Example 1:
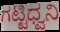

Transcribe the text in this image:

ಗಟ್ಟಿಧ್ವನಿ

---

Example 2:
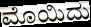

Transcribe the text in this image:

ಮೊಯಿದು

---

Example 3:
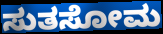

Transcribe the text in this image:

ಸುತಸೋಮ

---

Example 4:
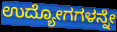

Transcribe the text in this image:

ಉದ್ಯೋಗಗಳನ್ನೇ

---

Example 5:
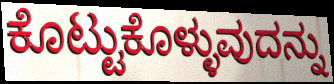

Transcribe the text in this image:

ಕೊಟ್ಟುಕೊಳ್ಳುವುದನ್ನು